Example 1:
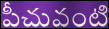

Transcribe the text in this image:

పీచువంటి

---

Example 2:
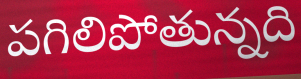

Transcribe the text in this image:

పగిలిపోతున్నది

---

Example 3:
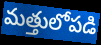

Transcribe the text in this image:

మత్తులోపడి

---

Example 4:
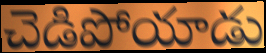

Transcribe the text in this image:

చెడిపోయాడు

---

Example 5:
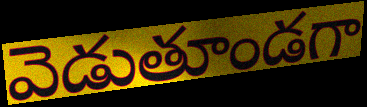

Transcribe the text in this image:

వెడుతూండగా